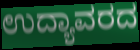
ಉದ್ಯಾವರದ